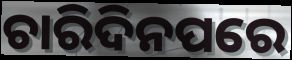
ଚାରିଦିନପରେ